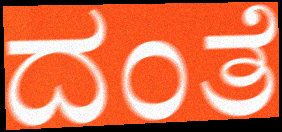
ದಂತೆ